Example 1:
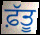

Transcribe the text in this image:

ਫ਼ੱਤੂ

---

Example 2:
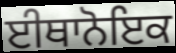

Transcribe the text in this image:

ਈਥਾਨੋਇਕ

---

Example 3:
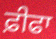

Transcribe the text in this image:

ਫ਼ੀਫਾ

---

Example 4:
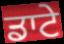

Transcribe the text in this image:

ਡਾਟੇ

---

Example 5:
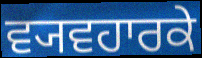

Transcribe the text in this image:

ਵ੍ਯਵਹਾਰਕੇ